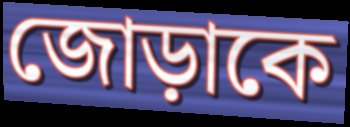
জোড়াকে